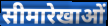
सीमारेखाओं